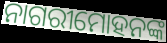
ନାଗରୀମୋହନଙ୍କ